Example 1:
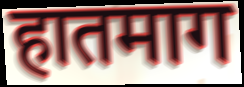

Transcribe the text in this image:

हातमाग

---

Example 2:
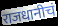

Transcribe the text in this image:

राजधानीचं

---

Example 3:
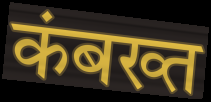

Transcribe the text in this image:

कंबख्त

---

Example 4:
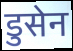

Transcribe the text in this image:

डुसेन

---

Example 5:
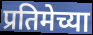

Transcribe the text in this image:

प्रतिमेच्या